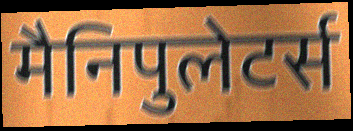
मैनिपुलेटर्स